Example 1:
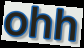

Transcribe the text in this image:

ohh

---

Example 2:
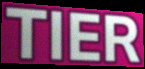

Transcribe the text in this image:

TIER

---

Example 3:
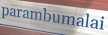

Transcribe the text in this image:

parambumalai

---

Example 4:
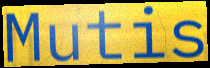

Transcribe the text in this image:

Mutis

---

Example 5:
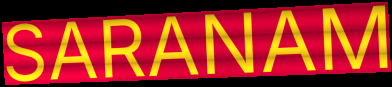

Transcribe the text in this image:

SARANAM